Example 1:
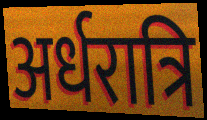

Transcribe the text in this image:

अर्धरात्रि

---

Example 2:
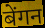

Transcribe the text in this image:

बेंगन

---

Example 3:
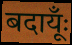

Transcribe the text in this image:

बदायूँः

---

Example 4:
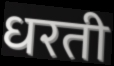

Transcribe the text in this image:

धरती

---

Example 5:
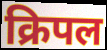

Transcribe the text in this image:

क्रिपल